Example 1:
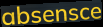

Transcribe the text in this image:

absensce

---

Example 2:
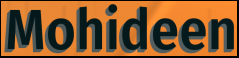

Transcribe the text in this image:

Mohideen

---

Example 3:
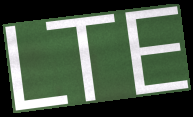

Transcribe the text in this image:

LTE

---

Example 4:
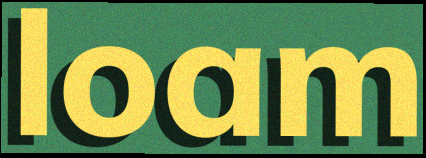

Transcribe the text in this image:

loam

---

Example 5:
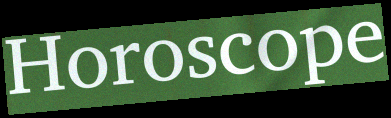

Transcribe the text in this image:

Horoscope